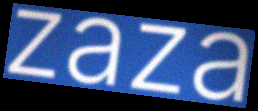
zaza